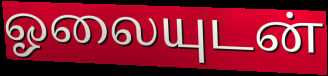
ஓலையுடன்